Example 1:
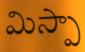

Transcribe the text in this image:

మిస్పా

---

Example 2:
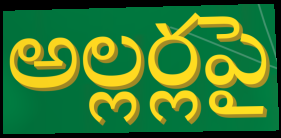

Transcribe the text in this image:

అల్లర్లపై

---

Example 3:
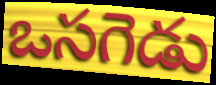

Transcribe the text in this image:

ఒసగెడు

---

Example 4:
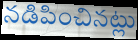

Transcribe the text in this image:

నడిపించినట్లు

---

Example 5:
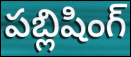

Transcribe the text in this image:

పబ్లిషింగ్